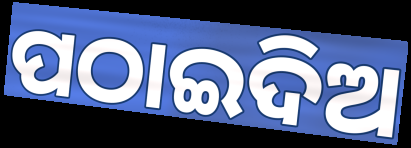
ପଠାଇଦିଅ